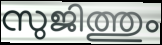
സുജിത്തും